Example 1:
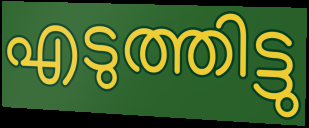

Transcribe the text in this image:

എടുത്തിട്ടു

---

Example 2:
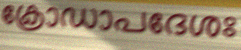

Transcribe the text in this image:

ക്രോഡാപദേശഃ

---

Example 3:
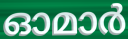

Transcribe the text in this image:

ഓമാർ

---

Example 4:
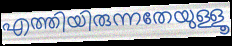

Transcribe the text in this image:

എത്തിയിരുന്നതേയുള്ളൂ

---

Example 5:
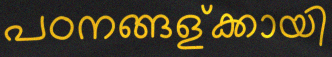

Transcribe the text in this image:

പഠനങ്ങള്ക്കായി